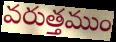
వరుత్తముం